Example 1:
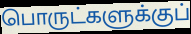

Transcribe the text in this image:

பொருட்களுக்குப்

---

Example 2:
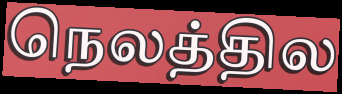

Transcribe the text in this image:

நெலத்தில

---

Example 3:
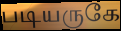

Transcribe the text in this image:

படியருகே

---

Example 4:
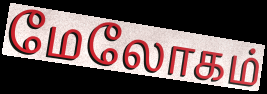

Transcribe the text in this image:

மேலோகம்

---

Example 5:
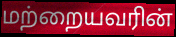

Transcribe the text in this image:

மற்றையவரின்